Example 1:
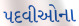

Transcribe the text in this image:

પદવીઓના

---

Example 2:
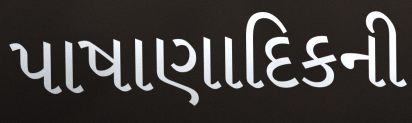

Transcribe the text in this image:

પાષાણાદિકની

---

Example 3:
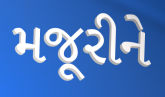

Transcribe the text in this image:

મજૂરીને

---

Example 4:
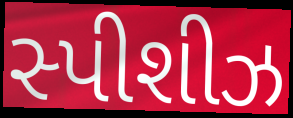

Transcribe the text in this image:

સ્પીશીઝ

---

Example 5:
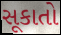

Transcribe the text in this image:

સૂકાતો